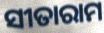
ସୀତାରାମ